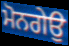
ਮੋਨਗੇਉ